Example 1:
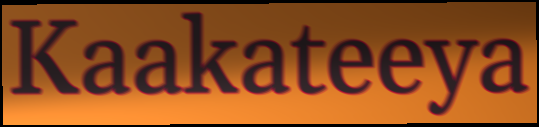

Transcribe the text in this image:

Kaakateeya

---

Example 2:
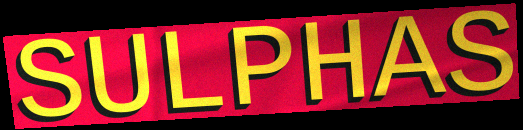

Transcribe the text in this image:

SULPHAS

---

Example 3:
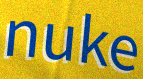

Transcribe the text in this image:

nuke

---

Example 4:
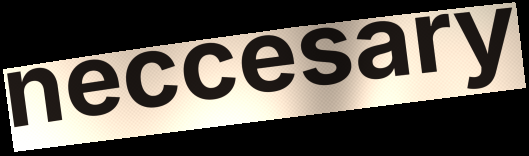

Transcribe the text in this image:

neccesary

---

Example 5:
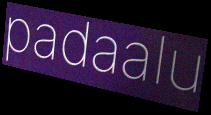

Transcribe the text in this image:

padaalu